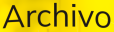
Archivo